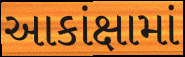
આકાંક્ષામાં